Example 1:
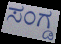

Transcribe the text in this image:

ಸಂಗ್ಡ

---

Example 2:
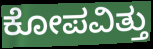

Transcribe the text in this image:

ಕೋಪವಿತ್ತು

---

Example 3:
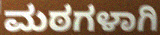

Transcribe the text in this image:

ಮಠಗಳಾಗಿ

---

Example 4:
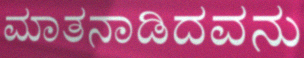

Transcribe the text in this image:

ಮಾತನಾಡಿದವನು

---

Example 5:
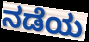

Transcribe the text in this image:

ನಡೆಯ